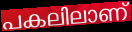
പകലിലാണ്